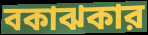
বকাঝকার